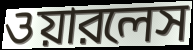
ওয়ারলেস